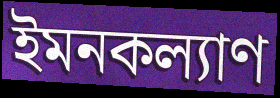
ইমনকল্যাণ